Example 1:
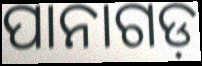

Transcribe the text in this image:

ପାନାଗଡ଼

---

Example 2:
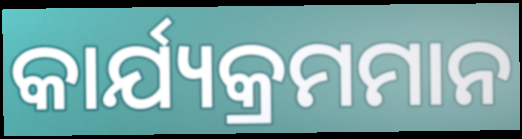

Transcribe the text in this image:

କାର୍ଯ୍ୟକ୍ରମମାନ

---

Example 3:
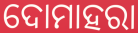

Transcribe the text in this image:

ଦୋମାହରା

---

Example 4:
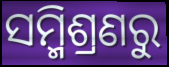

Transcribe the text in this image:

ସମ୍ମିଶ୍ରଣରୁ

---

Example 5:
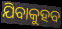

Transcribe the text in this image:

ଯିବାକୁହବ